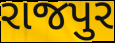
રાજપુર